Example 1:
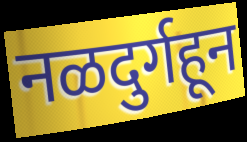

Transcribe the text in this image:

नळदुर्गहून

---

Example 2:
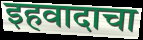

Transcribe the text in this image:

इहवादाचा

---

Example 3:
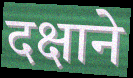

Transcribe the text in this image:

दक्षाने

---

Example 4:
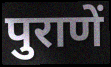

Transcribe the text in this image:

पुराणें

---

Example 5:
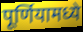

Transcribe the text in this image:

पूर्णियामध्ये